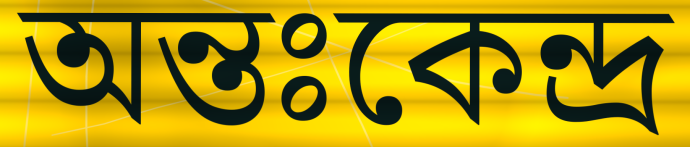
অন্তঃকেন্দ্র